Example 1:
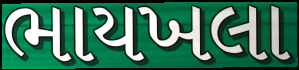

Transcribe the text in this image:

ભાયખલા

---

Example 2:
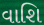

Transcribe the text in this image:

વાશિ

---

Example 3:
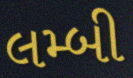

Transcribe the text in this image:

લમ્બી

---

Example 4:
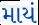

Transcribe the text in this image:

માયં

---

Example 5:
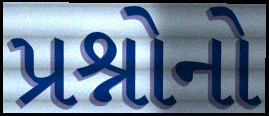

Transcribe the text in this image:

પ્રશ્નોનો